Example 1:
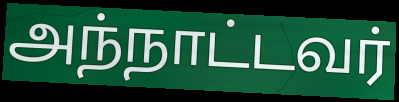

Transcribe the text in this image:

அந்நாட்டவர்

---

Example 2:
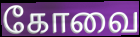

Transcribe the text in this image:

கோவை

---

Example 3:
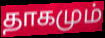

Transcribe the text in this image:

தாகமும்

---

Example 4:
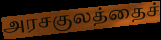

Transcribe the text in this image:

அரசகுலத்தைச்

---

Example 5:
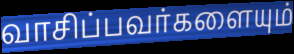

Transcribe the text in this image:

வாசிப்பவர்களையும்